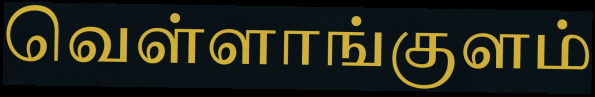
வெள்ளாங்குளம்